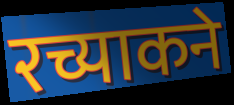
रच्याकने